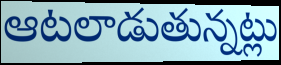
ఆటలాడుతున్నట్లు